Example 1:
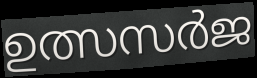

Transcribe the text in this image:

ഉത്സസർജ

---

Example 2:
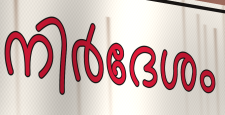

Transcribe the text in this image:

നിർദേശം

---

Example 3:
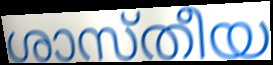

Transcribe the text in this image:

ശാസ്തീയ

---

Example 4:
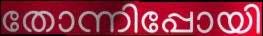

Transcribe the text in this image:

തോന്നിപ്പോയി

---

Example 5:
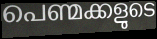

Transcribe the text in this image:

പെണ്മക്കളുടെ